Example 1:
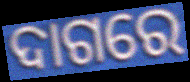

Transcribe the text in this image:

ଦାଗରେ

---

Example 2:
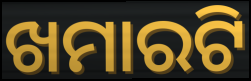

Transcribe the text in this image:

ଖମାରଟି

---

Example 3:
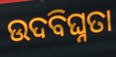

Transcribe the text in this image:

ଉଦବିଘ୍ନତା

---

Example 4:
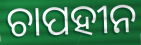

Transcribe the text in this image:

ଚାପହୀନ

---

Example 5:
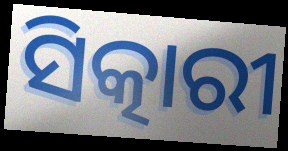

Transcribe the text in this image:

ସିତ୍କାରୀ